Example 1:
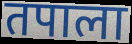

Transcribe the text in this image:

तपाला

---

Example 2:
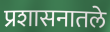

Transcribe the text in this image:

प्रशासनातले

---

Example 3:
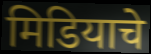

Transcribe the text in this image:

मिडियाचे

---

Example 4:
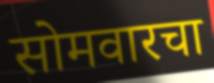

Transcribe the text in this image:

सोमवारचा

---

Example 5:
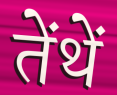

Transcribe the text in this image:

तेंथें